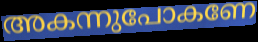
അകന്നുപോകണേ